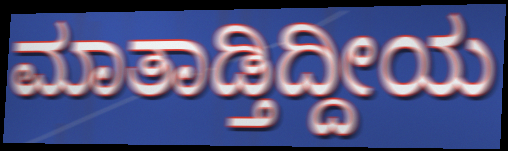
ಮಾತಾಡ್ತಿದ್ದೀಯ